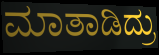
ಮಾತಾಡಿದ್ರು